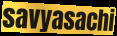
savyasachi